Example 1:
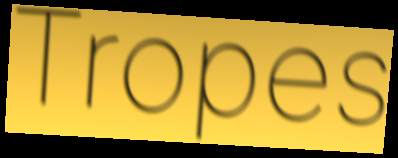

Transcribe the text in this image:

Tropes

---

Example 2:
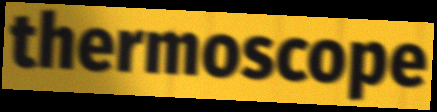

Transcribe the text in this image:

thermoscope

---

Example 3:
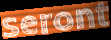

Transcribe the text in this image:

seront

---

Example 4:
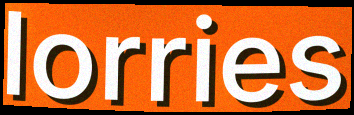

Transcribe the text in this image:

lorries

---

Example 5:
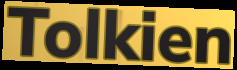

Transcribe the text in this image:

Tolkien